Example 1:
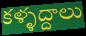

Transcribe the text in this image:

కళ్ళద్దాలు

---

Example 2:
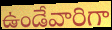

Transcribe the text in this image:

ఉండేవారిగా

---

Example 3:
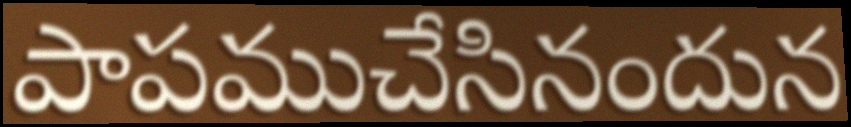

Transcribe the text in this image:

పాపముచేసినందున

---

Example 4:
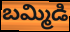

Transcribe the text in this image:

బమ్మిడి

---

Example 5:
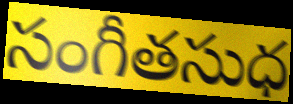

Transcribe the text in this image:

సంగీతసుధ